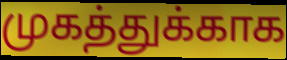
முகத்துக்காக